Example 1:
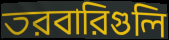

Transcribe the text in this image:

তরবারিগুলি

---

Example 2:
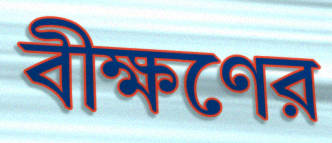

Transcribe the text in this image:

বীক্ষণের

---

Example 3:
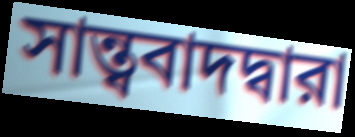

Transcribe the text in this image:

সান্ত্ববাদদ্বারা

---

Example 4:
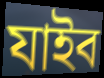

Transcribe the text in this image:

যাইব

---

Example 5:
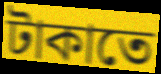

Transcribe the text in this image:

টাকাতে